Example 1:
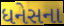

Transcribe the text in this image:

ધનેસના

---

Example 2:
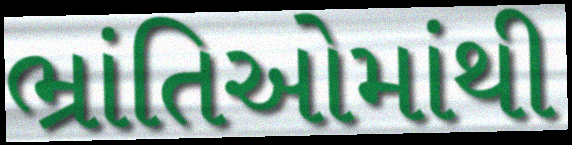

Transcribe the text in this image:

ભ્રાંતિઓમાંથી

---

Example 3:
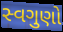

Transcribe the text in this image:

સ્વગુણો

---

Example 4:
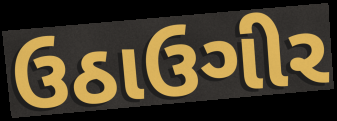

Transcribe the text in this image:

ઉઠાઉગીર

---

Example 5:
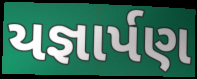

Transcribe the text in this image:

યજ્ઞાર્પણ